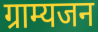
ग्राम्यजन